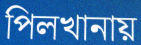
পিলখানায়